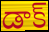
డాక్